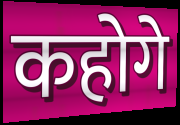
कहोगे